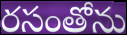
రసంతోను